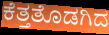
ಕೆತ್ತತೊಡಗಿದ